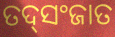
ତଦ୍‌ସଂଜାତ